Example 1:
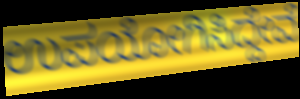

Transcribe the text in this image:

ಉಪಯೋಗಿಸಿದ್ದೇವೆ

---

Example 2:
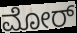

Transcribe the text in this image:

ಮೋರ್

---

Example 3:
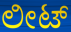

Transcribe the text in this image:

ಲೀಟ್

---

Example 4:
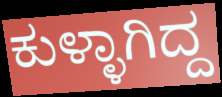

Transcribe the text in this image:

ಕುಳ್ಳಾಗಿದ್ದ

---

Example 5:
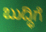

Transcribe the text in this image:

ಬುದ್ಧಿಗೆ